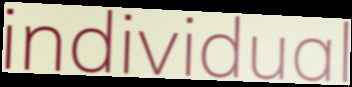
individual